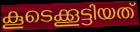
കൂടെക്കൂട്ടിയത്